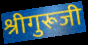
श्रीगुरूजी